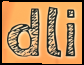
dli